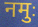
नमुः